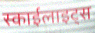
स्काईलाइट्स